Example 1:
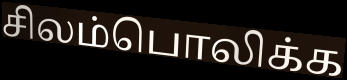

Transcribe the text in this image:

சிலம்பொலிக்க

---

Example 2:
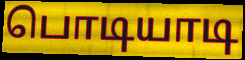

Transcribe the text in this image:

பொடியாடி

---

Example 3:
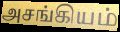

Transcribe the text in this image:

அசங்கியம்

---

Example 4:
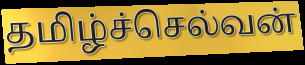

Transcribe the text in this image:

தமிழ்ச்செல்வன்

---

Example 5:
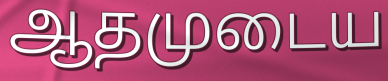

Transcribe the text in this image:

ஆதமுடைய